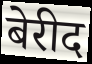
बेरीद